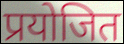
प्रयोजित